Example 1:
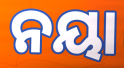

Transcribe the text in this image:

ନୟା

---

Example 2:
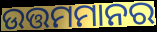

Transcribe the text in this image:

ଉତ୍ତମମାନର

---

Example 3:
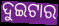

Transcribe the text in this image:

ଦୁଇଟାର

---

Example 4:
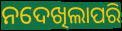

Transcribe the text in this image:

ନଦେଖିଲାପରି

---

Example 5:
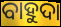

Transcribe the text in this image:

ବାହୁଦା